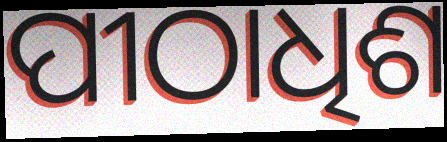
ପୀଠାଧିଶ